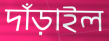
দাঁড়াইল